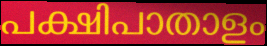
പക്ഷിപാതാളം